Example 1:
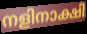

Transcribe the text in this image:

നളിനാക്ഷി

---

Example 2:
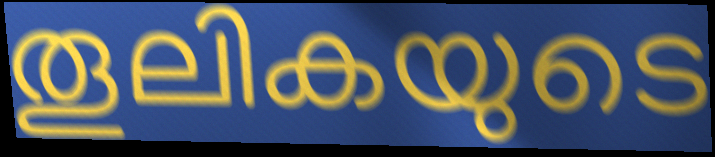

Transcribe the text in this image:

തൂലികയുടെ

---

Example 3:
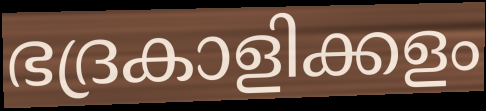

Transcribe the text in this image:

ഭദ്രകാളിക്കളം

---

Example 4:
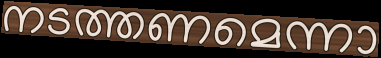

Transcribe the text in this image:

നടത്തണമെന്നാ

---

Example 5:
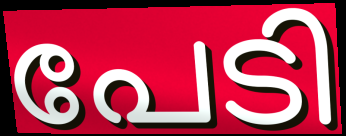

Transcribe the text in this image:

പേടി